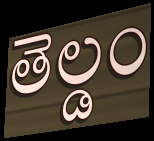
తెల్డం